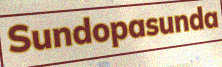
Sundopasunda